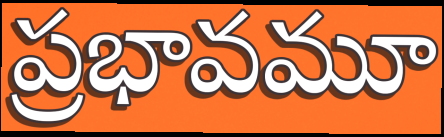
ప్రభావమూ